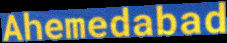
Ahemedabad